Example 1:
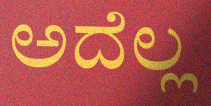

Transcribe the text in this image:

ಅದೆಲ್ಲ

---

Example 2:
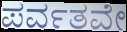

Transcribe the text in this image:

ಪರ್ವತವೇ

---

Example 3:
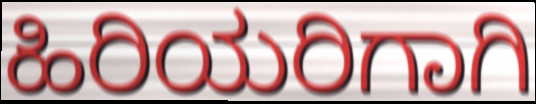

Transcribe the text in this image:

ಹಿರಿಯರಿಗಾಗಿ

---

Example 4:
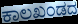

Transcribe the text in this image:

ಕಾಲಖಂಡದ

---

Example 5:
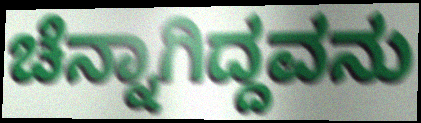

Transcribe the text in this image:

ಚೆನ್ನಾಗಿದ್ದವನು